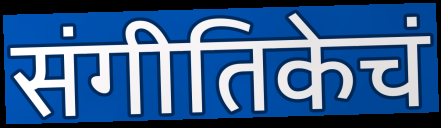
संगीतिकेचं